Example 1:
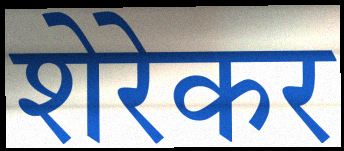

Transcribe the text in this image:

शेरेकर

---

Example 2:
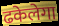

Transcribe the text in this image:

ढकेलेगा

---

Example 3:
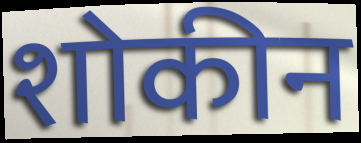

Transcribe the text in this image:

शोकीन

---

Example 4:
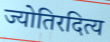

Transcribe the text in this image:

ज्योतिरदित्य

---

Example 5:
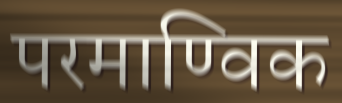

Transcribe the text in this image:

परमाण्विक